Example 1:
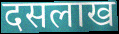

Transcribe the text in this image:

दसलाख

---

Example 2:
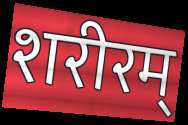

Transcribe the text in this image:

शरीरम्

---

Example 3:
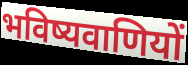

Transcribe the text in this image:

भविष्यवाणियों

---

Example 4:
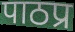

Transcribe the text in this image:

पाठप्र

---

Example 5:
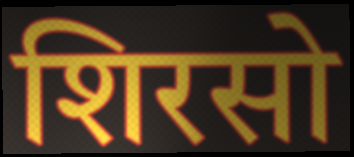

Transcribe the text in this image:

शिरसो